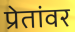
प्रेतांवर